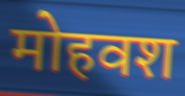
मोहवश